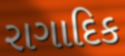
રાગાદિક